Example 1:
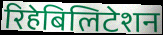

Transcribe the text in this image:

रिहेबिलिटेशन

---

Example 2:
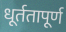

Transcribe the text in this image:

धूर्ततापूर्ण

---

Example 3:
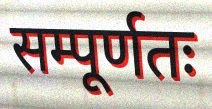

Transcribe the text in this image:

सम्पूर्णतः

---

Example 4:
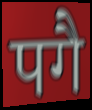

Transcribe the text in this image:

पगै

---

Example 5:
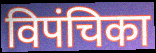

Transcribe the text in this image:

विपंचिका